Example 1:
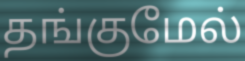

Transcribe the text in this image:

தங்குமேல்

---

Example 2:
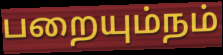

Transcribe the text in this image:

பறையும்நம்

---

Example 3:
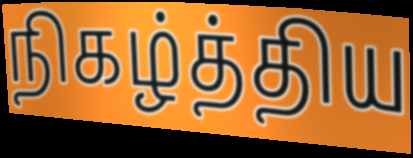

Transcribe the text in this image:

நிகழ்த்திய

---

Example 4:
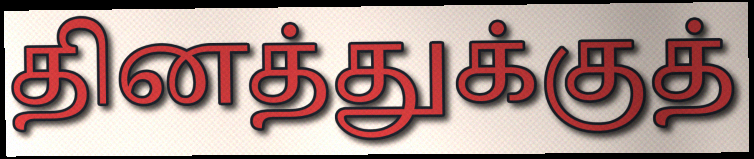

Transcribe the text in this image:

தினத்துக்குத்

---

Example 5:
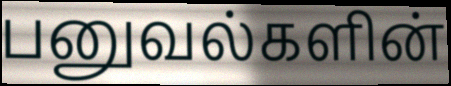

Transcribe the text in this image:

பனுவல்களின்